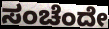
ಸಂಚೆಂದೇ